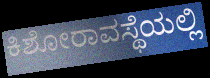
ಕಿಶೋರಾವಸ್ಥೆಯಲ್ಲಿ